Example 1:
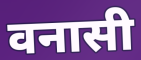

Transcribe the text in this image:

वनासी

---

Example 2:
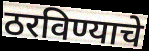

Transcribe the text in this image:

ठरविण्याचे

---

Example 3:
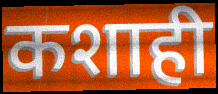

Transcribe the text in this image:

कशाही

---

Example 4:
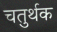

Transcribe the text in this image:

चतुर्थक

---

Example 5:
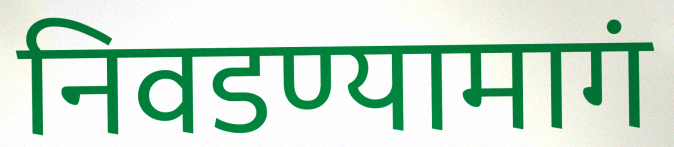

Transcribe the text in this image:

निवडण्यामागं